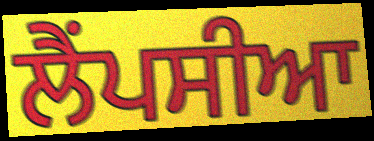
ਲੈਂਪਸੀਆ